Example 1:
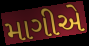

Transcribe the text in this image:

માગીએ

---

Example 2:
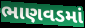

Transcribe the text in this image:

ભાણવડમાં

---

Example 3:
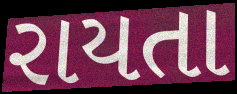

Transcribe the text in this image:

રાયતા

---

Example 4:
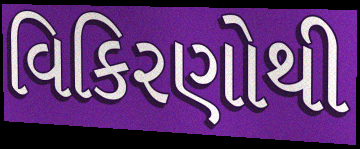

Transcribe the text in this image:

વિકિરણોથી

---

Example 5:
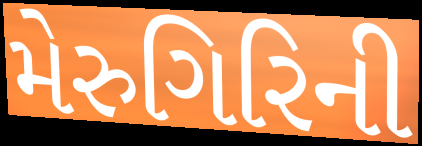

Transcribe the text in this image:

મેરુગિરિની